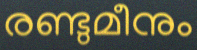
രണ്ടുമീനും